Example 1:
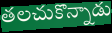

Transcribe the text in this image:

తలచుకొన్నాడు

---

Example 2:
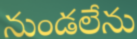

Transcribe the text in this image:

నుండలేను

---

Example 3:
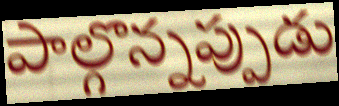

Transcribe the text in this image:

పాల్గొన్నప్పుడు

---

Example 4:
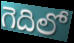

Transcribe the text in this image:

గెదిలో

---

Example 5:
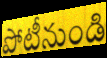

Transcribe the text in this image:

పోటీనుండి